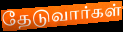
தேடுவார்கள்